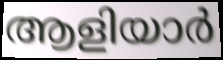
ആളിയാർ